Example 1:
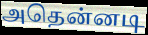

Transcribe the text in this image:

அதென்னடி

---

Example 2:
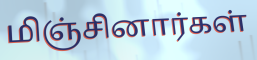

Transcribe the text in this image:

மிஞ்சினார்கள்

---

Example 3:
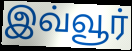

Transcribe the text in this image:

இவ்வூர்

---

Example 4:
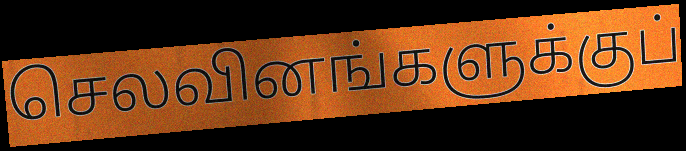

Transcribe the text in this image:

செலவினங்களுக்குப்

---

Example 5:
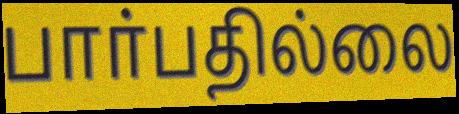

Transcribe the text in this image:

பார்பதில்லை